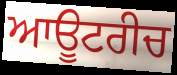
ਆਊਟਰੀਚ